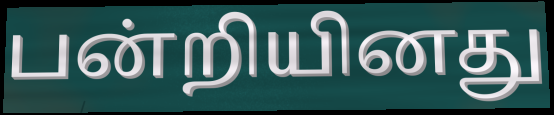
பன்றியினது